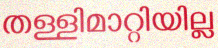
തള്ളിമാറ്റിയില്ല